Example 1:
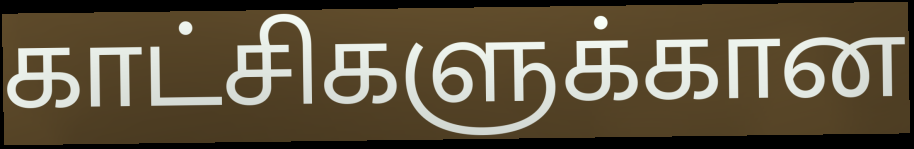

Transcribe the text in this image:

காட்சிகளுக்கான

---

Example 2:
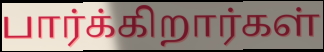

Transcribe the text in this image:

பார்க்கிறார்கள்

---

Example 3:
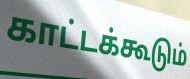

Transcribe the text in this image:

காட்டக்கூடும்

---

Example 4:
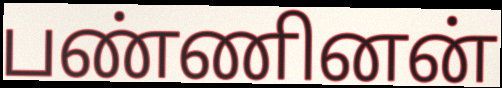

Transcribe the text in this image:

பண்ணினன்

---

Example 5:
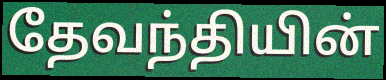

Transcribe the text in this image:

தேவந்தியின்